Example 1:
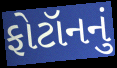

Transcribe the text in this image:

ફોટૉનનું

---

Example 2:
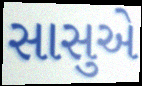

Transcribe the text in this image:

સાસુએ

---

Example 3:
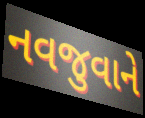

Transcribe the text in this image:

નવજુવાને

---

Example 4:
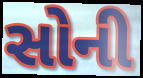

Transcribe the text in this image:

સોની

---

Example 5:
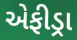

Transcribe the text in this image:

એફીડ્રા